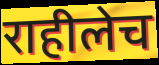
राहीलेच